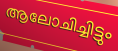
ആലോചിച്ചിട്ടും